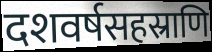
दशवर्षसहस्राणि